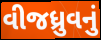
વીજધ્રુવનું